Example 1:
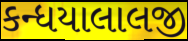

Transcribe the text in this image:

કન્ધયાલાલજી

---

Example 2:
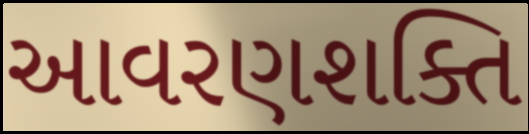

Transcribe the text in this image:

આવરણશક્તિ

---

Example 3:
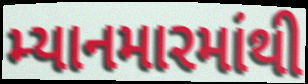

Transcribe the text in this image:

મ્યાનમારમાંથી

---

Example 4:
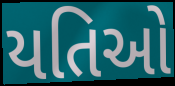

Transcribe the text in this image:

યતિઓ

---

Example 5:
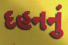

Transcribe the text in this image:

દહનનું